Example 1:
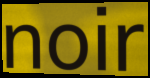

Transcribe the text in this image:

noir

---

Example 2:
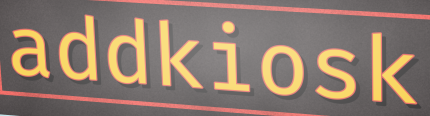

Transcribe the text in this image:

addkiosk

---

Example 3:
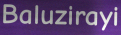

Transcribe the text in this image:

Baluzirayi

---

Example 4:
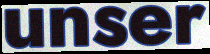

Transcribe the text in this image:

unser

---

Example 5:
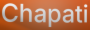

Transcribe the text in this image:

Chapati